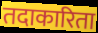
तदाकारिता